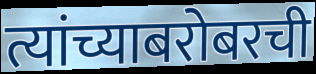
त्यांच्याबरोबरची